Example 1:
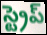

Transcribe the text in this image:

స్ట్రెప్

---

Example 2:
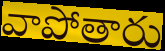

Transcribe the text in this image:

వాపోతారు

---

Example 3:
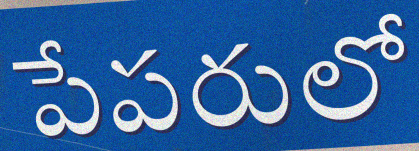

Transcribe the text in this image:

పేపరులో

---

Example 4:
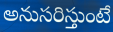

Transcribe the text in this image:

అనుసరిస్తుంటే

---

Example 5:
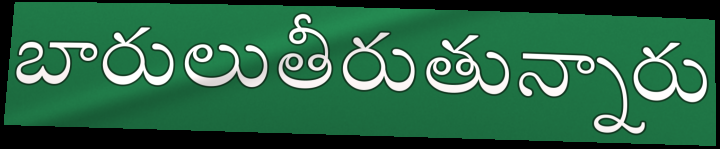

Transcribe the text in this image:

బారులుతీరుతున్నారు